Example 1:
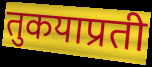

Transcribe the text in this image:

तुकयाप्रती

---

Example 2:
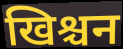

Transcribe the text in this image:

खिश्चन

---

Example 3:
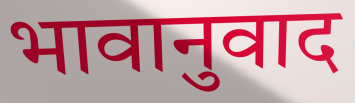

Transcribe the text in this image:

भावानुवाद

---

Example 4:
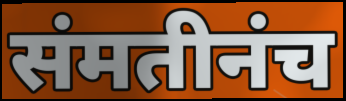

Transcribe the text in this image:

संमतीनंच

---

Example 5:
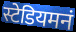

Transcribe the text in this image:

स्टेडियमनं